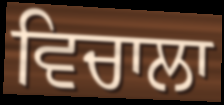
ਵਿਚਾਲਾ